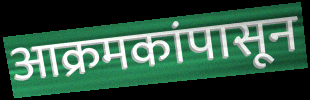
आक्रमकांपासून